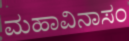
ಮಹಾವಿನಾಸಂ